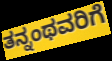
ತನ್ನಂಥವರಿಗೆ